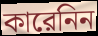
কারেনিন